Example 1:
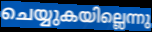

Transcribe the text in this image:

ചെയ്യുകയില്ലെന്നു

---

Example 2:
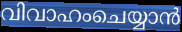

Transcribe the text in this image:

വിവാഹംചെയ്യാൻ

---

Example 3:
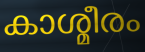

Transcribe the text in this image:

കാശ്മീരം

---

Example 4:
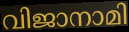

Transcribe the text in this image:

വിജാനാമി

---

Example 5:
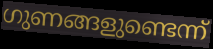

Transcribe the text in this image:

ഗുണങ്ങളുണ്ടെന്ന്